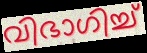
വിഭാഗിച്ച്